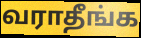
வராதீங்க